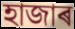
হাজাৰ